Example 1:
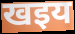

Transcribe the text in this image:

खइय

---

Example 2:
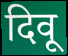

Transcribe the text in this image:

दिवू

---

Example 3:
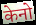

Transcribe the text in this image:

केनो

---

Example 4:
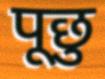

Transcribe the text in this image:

पूछु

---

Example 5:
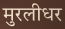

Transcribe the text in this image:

मुरलीधर